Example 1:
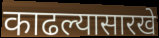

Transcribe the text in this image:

काढल्यासारखे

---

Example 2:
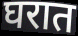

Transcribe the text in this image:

घरात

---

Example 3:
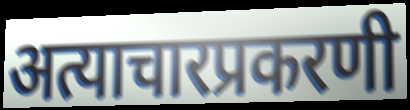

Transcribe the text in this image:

अत्याचारप्रकरणी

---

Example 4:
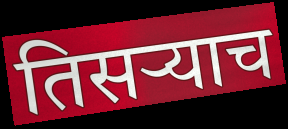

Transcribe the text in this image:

तिसऱ्याच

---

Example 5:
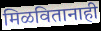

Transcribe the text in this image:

मिळवितानाही